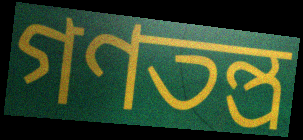
গণতন্ত্র